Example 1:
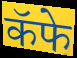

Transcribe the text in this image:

कॅफे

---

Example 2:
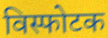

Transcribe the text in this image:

विस्फोटक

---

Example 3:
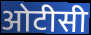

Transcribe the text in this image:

ओटीसी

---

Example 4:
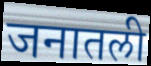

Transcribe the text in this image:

जनातली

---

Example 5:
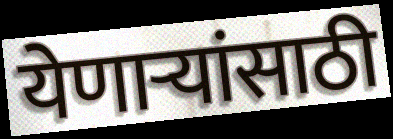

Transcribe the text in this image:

येणाऱ्यांसाठी